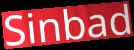
Sinbad